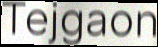
Tejgaon